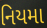
નિયમા